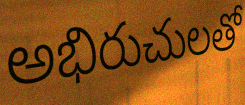
అభిరుచులతో